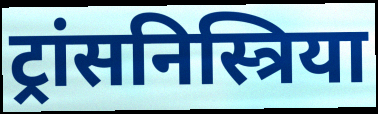
ट्रांसनिस्त्रिया